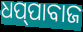
ଧପ୍‌ପାବାଜ